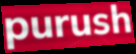
purush